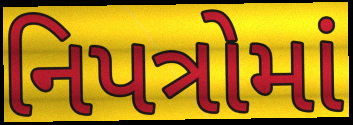
નિપત્રોમાં